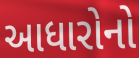
આધારોનો